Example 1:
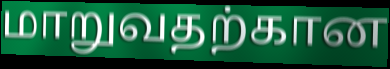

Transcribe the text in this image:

மாறுவதற்கான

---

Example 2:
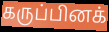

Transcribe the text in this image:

கருப்பினக்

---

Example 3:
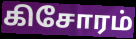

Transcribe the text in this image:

கிசோரம்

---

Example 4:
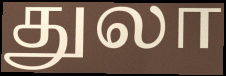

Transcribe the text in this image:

துலா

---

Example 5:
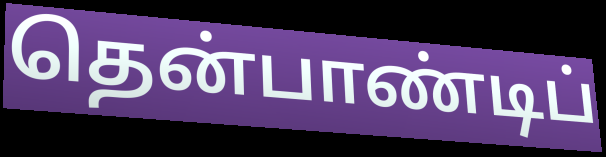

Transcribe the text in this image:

தென்பாண்டிப்